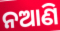
ନଆଣି